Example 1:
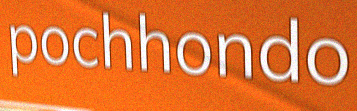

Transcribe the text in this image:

pochhondo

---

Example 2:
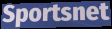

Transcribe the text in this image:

Sportsnet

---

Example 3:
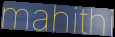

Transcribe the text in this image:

mahithi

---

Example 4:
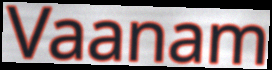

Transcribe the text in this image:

Vaanam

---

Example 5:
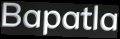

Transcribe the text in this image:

Bapatla